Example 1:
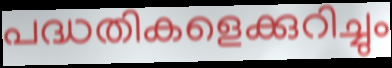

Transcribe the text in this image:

പദ്ധതികളെക്കുറിച്ചും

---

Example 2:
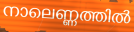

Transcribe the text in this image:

നാലെണ്ണത്തിൽ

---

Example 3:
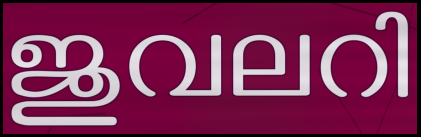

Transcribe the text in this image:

ജുവലറി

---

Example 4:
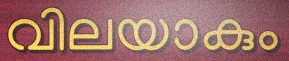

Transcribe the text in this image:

വിലയാകും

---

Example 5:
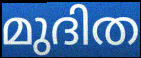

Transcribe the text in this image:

മുദിത